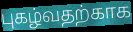
புகழ்வதற்காக